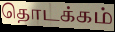
தொடக்கம்